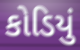
કોડિયું